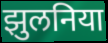
झुलनिया